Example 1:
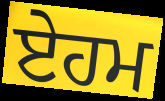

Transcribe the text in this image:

ਏਹਮ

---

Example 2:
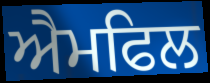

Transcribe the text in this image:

ਐਮਫਿਲ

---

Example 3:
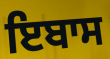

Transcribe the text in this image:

ਇਬਾਸ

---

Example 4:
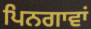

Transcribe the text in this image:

ਪਿਨਗਾਵਾਂ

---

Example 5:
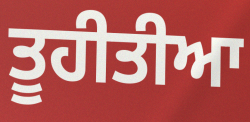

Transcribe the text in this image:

ਤੂਹੀਤੀਆ